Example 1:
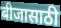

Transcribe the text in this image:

बीजासाठी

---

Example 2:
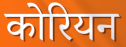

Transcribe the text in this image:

कोरियन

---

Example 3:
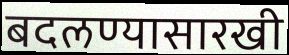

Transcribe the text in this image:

बदलण्यासारखी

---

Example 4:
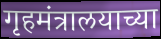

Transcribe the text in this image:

गृहमंत्रालयाच्या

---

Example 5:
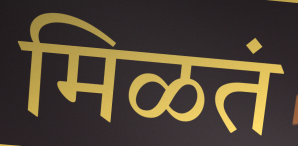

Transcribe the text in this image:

मिळतं